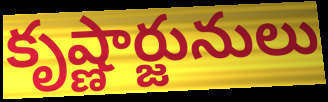
కృష్ణార్జునులు